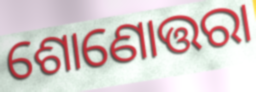
ଶୋଣୋତ୍ତରା